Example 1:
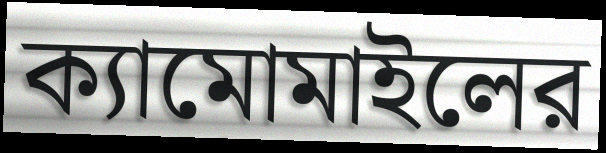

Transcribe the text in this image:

ক্যামোমাইলের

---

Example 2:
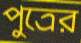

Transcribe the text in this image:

পুত্রের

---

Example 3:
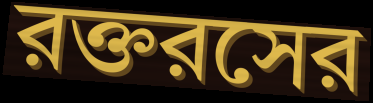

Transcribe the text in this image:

রক্তরসের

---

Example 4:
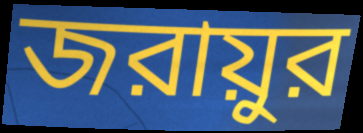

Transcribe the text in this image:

জরায়ুর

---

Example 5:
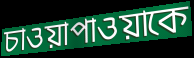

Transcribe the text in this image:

চাওয়াপাওয়াকে